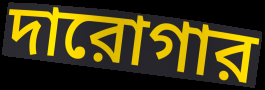
দারোগার